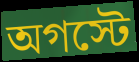
অগস্টে